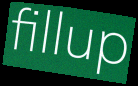
fillup